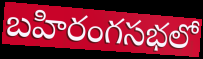
బహిరంగసభలో